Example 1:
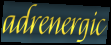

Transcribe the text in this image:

adrenergic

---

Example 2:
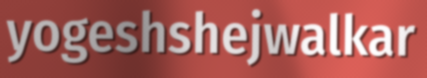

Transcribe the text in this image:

yogeshshejwalkar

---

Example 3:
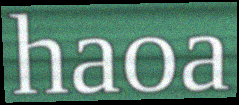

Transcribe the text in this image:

haoa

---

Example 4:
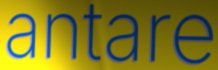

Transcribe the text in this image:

antare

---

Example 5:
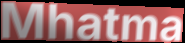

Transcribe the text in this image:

Mhatma